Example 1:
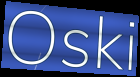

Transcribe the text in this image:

Oski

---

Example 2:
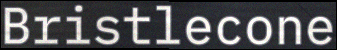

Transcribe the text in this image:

Bristlecone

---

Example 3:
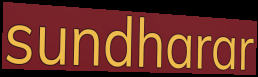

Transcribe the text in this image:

sundharar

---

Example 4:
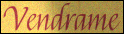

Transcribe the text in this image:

Vendrame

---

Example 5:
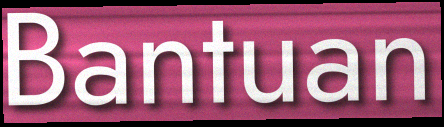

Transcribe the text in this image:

Bantuan